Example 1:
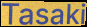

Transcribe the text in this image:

Tasaki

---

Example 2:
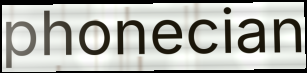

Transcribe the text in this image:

phonecian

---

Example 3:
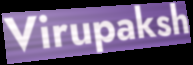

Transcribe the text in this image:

Virupaksh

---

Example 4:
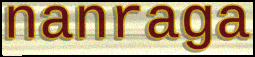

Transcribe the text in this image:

nanraga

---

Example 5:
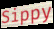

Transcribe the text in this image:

Sippy